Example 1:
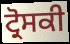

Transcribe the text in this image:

ਟ੍ਰੋਸਕੀ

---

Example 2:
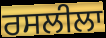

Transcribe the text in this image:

ਰਸਲੀਲਾ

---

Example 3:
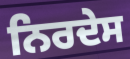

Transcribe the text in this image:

ਨਿਰਦੇਸ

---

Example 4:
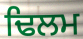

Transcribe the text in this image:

ਢਿਲਮ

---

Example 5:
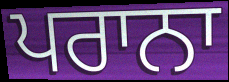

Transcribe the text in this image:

ਪਰਾਨਾ